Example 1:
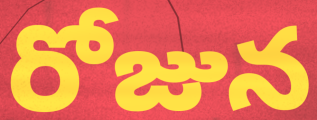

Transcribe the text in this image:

రోజున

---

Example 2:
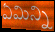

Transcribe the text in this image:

ఏమిన్ని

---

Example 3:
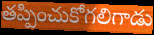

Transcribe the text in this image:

తప్పించుకోగలిగాడు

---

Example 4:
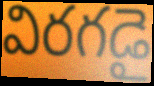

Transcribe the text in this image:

విరగడై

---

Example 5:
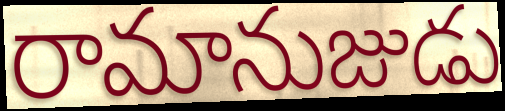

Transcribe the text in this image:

రామానుజుడు